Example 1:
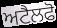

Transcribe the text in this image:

ਅਟੈਲਫੋ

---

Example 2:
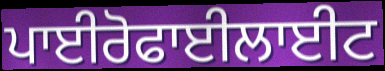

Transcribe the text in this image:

ਪਾਈਰੋਫਾਈਲਾਈਟ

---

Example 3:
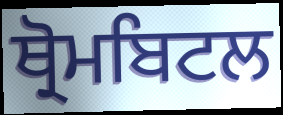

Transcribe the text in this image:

ਥ੍ਰੋਮਬਿਟਲ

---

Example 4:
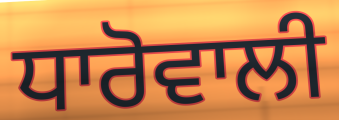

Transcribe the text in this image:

ਧਾਰੋਵਾਲੀ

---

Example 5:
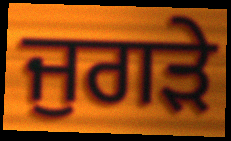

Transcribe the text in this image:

ਜੁਗੜੇ